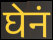
घेनं